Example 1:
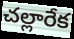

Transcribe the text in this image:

చల్లారేక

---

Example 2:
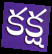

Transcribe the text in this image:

కక్ష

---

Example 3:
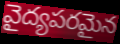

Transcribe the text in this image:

వైద్యపరమైన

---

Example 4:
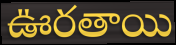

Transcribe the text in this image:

ఊరతాయి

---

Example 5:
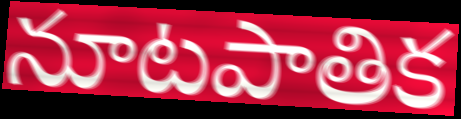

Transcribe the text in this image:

నూటపాతిక